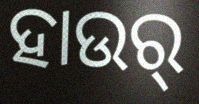
ହାଉର୍